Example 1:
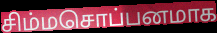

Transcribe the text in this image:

சிம்மசொப்பனமாக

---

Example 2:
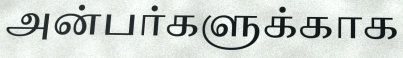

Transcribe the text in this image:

அன்பர்களுக்காக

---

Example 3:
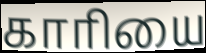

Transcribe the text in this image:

காரியை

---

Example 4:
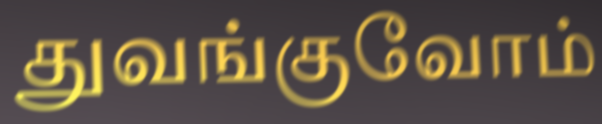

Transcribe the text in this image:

துவங்குவோம்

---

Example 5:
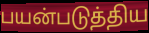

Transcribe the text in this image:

பயன்படுத்திய